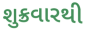
શુક્રવારથી